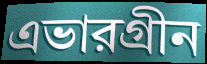
এভারগ্রীন